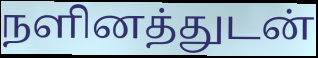
நளினத்துடன்